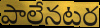
పాలేనటర